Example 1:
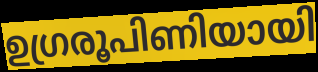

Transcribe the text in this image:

ഉഗ്രരൂപിണിയായി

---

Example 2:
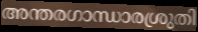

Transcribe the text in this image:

അന്തരഗാന്ധാരശ്രുതി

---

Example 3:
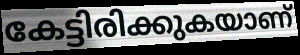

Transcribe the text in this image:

കേട്ടിരിക്കുകയാണ്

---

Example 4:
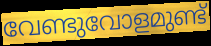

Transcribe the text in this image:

വേണ്ടുവോളമുണ്ട്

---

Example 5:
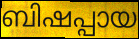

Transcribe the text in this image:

ബിഷപ്പായ